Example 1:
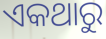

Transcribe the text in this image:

ଏକଥାରୁ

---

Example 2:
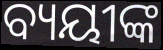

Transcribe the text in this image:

ବ୍ୟୟୀଙ୍କ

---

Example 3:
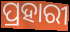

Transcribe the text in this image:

ପ୍ରହାରୀ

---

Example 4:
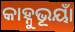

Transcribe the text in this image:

କାହ୍ନୁଭୂୟାଁ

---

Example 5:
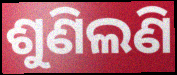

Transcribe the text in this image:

ଶୁଣିଲଣି